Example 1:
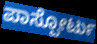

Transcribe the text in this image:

ಪಾಸ್ಪೋರ್ಟು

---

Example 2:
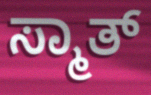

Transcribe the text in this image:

ಸ್ಮಾತ್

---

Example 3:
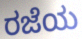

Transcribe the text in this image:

ರಜೆಯ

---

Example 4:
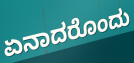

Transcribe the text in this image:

ಏನಾದರೊಂದು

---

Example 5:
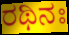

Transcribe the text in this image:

ರಥಿನಃ